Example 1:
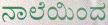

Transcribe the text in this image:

ನಾಲೆಯಿಂದ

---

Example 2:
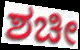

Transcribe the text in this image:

ಶಚೀ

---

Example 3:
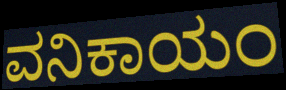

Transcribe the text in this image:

ವನಿಕಾಯಂ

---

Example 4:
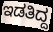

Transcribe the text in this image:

ಇಡತಿದ್ದ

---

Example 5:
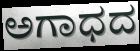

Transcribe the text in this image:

ಅಗಾಧದ